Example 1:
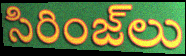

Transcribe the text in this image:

సిరింజ్‌లు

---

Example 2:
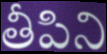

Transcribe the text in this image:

తీపిని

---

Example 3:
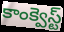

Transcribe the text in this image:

కాంక్వెస్ట్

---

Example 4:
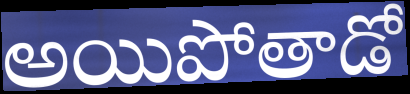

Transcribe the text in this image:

అయిపోతాడో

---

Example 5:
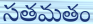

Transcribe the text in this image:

సతమతం